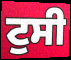
ਟੁਸੀ